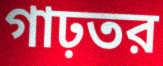
গাঢ়তর